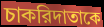
চাকরিদাতাকে